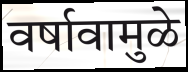
वर्षावामुळे